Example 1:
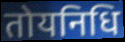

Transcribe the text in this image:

तोयनिधि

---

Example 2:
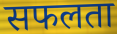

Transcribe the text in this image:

सफलता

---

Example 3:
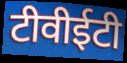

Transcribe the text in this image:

टीवीईटी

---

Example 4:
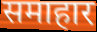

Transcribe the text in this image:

समाहार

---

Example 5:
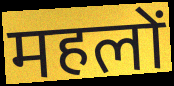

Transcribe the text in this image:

महलों